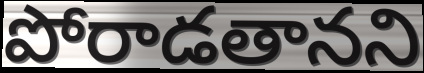
పోరాడతానని